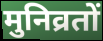
मुनिव्रतों